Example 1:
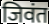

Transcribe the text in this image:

जिवंत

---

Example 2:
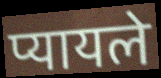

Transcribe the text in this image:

प्यायले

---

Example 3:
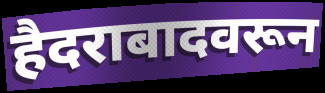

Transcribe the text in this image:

हैदराबादवरून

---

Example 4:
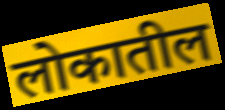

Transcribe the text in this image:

लोकातील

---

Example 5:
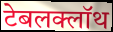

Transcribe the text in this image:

टेबलक्लॉथ